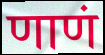
णाणं